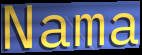
Nama